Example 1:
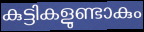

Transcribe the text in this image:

കുട്ടികളുണ്ടാകും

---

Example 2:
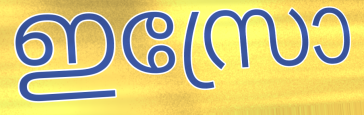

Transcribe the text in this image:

ഇസ്രോ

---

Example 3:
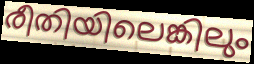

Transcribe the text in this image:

രീതിയിലെങ്കിലും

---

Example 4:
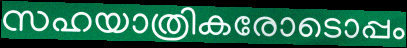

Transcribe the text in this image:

സഹയാത്രികരോടൊപ്പം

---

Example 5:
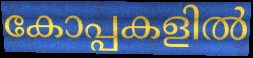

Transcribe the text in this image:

കോപ്പകളിൽ